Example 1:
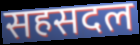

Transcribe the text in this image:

सहसदल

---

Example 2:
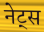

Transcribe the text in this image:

नेट्स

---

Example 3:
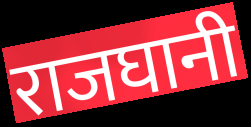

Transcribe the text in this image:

राजघानी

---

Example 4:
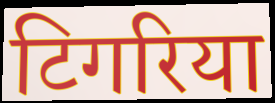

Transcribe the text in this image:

टिगरिया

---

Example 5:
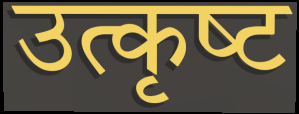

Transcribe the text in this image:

उत्‍कृष्‍ट